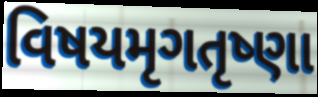
વિષયમૃગતૃષ્ણા